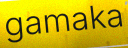
gamaka